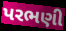
પરભણી